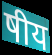
षीय